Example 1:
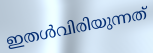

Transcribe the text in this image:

ഇതൾവിരിയുന്നത്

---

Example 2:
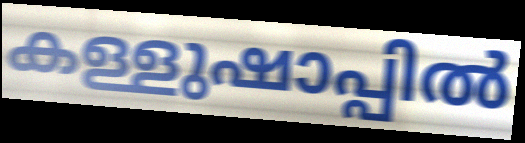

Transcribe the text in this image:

കള്ളുഷാപ്പിൽ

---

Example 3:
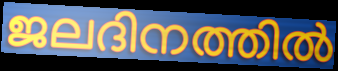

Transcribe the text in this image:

ജലദിനത്തിൽ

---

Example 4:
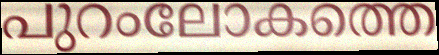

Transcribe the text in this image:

പുറംലോകത്തെ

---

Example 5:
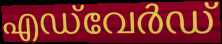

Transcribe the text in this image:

എഡ്‌വേർഡ്